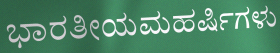
ಭಾರತೀಯಮಹರ್ಷಿಗಳು